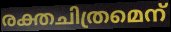
രക്തചിത്രമെന്